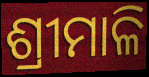
ଶ୍ରୀମାଳି